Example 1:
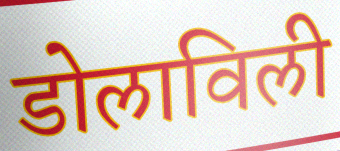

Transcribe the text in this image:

डोलाविली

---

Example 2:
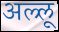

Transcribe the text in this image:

अल्लू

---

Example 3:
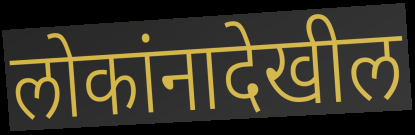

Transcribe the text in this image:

लोकांनादेखील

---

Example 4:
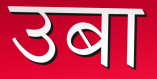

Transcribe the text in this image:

उबा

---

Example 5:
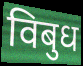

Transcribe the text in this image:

विबुध